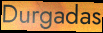
Durgadas